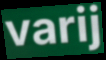
varij